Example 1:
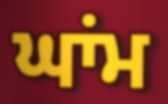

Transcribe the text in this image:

ਘਾਂਮ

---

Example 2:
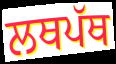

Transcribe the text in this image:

ਲਥਪੱਥ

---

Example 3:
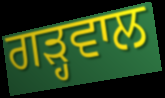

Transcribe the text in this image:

ਗੜ੍ਹਵਾਲ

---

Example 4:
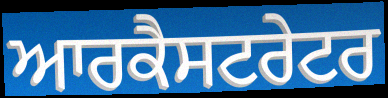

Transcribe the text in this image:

ਆਰਕੈਸਟਰੇਟਰ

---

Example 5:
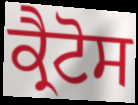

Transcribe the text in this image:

ਕ੍ਰੈਟੋਸ